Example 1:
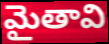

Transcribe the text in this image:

మైతావి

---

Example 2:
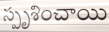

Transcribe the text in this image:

స్పృశించాయి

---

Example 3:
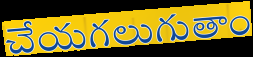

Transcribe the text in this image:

చేయగలుగుతాం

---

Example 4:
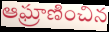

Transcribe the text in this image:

ఆఘ్రాణించిన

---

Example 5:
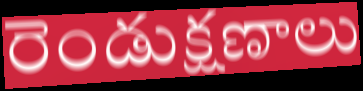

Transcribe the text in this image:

రెండుక్షణాలు